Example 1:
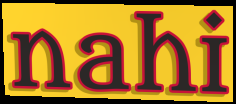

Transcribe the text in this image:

nahi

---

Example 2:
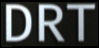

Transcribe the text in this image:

DRT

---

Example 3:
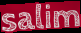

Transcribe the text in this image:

salim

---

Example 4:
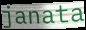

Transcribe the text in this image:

janata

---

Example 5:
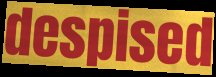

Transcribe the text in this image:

despised